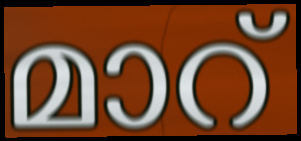
മാറ്